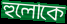
হুলোকে